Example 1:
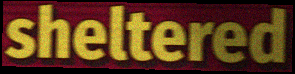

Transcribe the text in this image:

sheltered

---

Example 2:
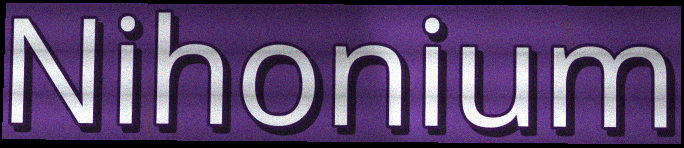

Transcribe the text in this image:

Nihonium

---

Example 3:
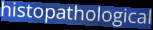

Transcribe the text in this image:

histopathological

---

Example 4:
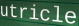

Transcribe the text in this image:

utricle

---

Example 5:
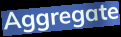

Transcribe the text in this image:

Aggregate